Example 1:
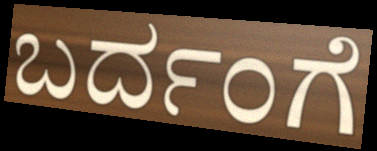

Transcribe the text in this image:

ಬರ್ದಂಗೆ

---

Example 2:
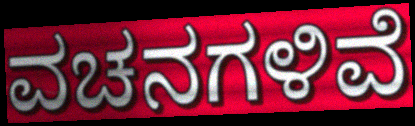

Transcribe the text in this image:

ವಚನಗಳಿವೆ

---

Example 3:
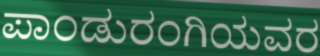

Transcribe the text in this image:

ಪಾಂಡುರಂಗಿಯವರ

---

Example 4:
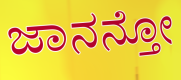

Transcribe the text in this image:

ಜಾನನ್ತೋ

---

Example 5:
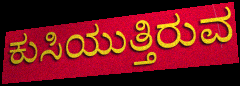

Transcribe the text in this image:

ಕುಸಿಯುತ್ತಿರುವ